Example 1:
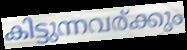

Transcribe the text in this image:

കിട്ടുന്നവര്ക്കും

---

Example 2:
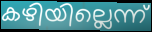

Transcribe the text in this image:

കഴിയില്ലെന്ന്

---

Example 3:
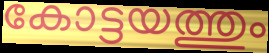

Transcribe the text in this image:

കോട്ടയത്തും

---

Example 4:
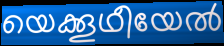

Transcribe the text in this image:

യെക്കൂഥീയേൽ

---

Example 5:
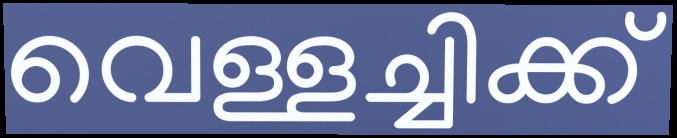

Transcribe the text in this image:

വെള്ളച്ചിക്ക്